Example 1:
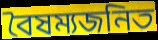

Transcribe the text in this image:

বৈষম্যজনিত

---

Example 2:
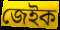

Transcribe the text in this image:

জেইক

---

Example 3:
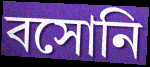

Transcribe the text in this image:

বসোনি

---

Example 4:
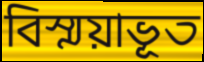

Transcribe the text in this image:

বিস্ময়াভূত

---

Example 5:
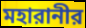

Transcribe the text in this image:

মহারানীর